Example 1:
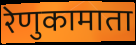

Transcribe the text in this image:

रेणुकामाता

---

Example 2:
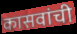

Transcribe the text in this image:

कासवांची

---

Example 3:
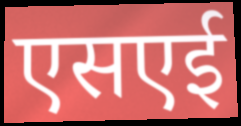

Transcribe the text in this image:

एसएई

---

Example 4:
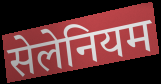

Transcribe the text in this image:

सेलेनियम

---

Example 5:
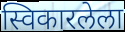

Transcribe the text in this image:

स्विकारलेला